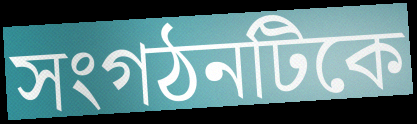
সংগঠনটিকে